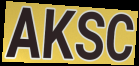
AKSC